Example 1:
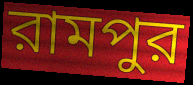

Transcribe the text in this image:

রামপুর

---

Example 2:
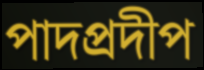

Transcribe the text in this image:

পাদপ্রদীপ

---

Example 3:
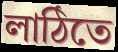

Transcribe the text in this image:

লাঠিতে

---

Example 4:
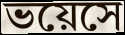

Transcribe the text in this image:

ভয়েসে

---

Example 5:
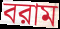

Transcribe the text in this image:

বরাম